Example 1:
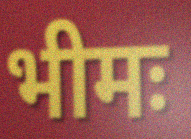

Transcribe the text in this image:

भीमः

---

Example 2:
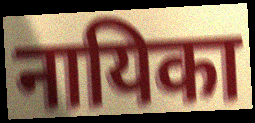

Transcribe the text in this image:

नायिका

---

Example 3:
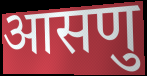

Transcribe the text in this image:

आसणु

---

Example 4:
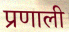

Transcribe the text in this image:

प्रणाली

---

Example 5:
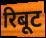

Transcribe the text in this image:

रिबूट